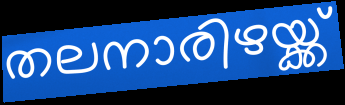
തലനാരിഴയ്ക്ക്